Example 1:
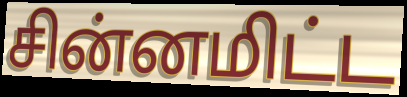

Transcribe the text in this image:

சின்னமிட்ட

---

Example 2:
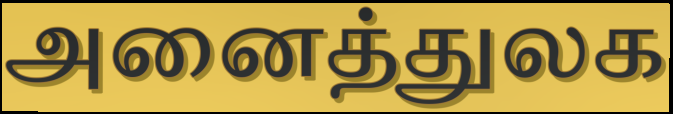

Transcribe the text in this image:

அனைத்துலக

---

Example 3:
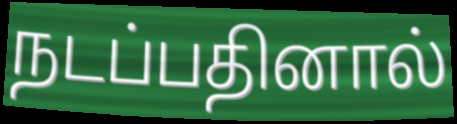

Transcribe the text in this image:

நடப்பதினால்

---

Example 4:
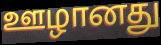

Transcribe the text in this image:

ஊழானது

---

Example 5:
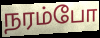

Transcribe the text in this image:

நரம்போ